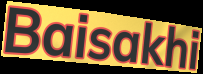
Baisakhi